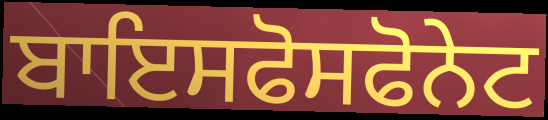
ਬਾਇਸਫੋਸਫੋਨੇਟ